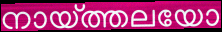
നായ്ത്തലയോ